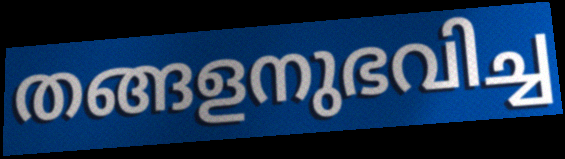
തങ്ങളനുഭവിച്ച